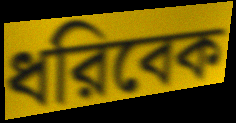
ধরিবেক